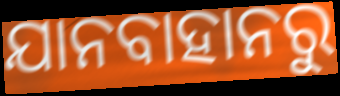
ଯାନବାହାନରୁ